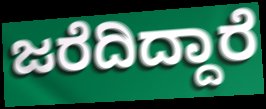
ಜರೆದಿದ್ದಾರೆ